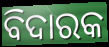
ବିଦାରକ